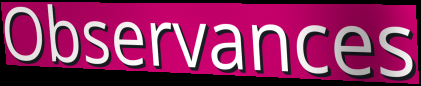
Observances